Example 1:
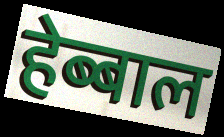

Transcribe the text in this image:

हेब्बाल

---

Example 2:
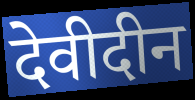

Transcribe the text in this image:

देवीदीन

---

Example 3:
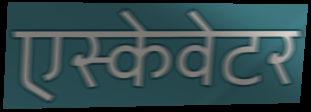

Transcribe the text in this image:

एस्केवेटर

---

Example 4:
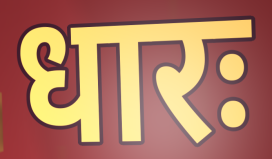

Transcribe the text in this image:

धारः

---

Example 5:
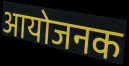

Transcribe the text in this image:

आयोजनक